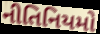
નીતિનિયમો